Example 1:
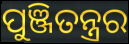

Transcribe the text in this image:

ପୁଞ୍ଜିତନ୍ତ୍ରର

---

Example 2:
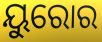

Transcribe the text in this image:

ୟୁରୋର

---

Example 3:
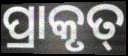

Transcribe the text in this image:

ପ୍ରାକୃତ୍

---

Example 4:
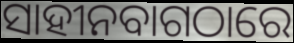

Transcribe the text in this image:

ସାହୀନବାଗଠାରେ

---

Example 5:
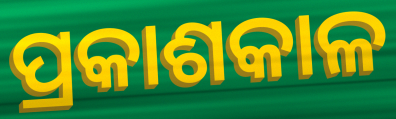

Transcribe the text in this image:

ପ୍ରକାଶକାଳ